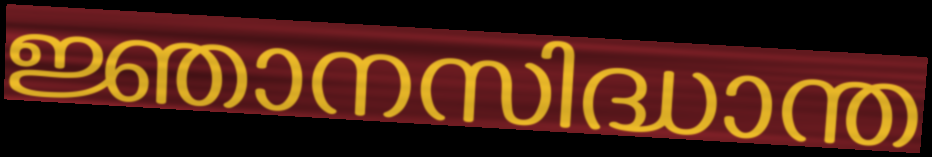
ജ്ഞാനസിദ്ധാന്ത